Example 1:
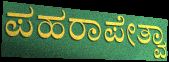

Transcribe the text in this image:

ಪಹರಾಪೇತ್ವಾ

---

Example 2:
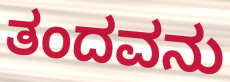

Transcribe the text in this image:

ತಂದವನು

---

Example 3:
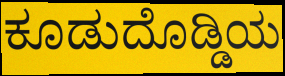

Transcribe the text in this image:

ಕೂಡುದೊಡ್ಡಿಯ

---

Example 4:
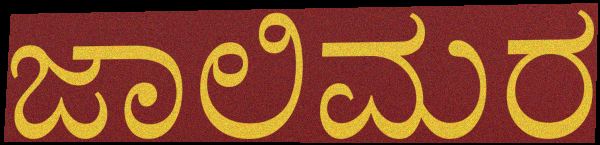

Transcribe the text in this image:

ಜಾಲಿಮರ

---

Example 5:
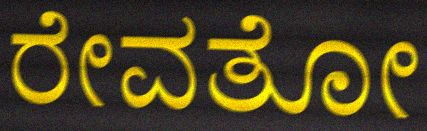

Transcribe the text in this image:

ರೇವತೋ